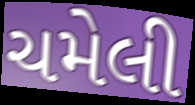
ચમેલી